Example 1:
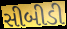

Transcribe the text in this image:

સીબીડી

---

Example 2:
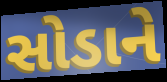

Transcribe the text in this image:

સોડાને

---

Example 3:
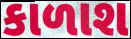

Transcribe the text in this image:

કાળાશ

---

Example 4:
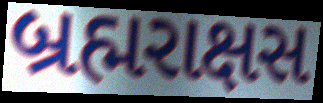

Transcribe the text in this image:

બ્રહ્મરાક્ષસ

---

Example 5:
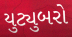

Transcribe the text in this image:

યુટ્યુબરો